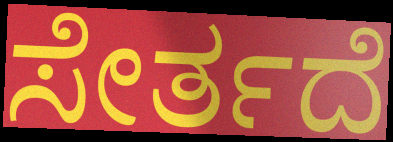
ಸೇರ್ತದೆ